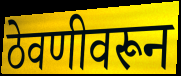
ठेवणीवरून